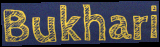
Bukhari